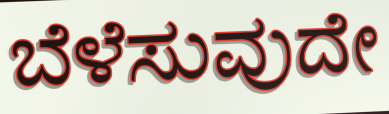
ಬೆಳೆಸುವುದೇ